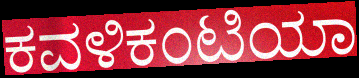
ಕವಳಿಕಂಟಿಯಾ